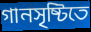
গানসৃষ্টিতে